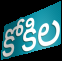
కోకిల